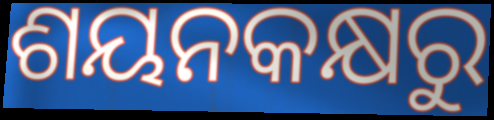
ଶୟନକକ୍ଷରୁ